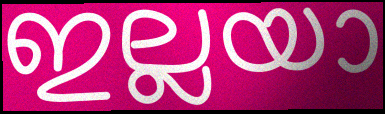
ഇല്ലയാ